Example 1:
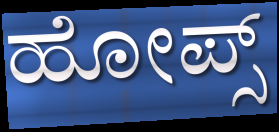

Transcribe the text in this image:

ಹೋಪ್ಸ್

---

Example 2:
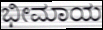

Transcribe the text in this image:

ಭೀಮಾಯ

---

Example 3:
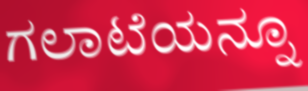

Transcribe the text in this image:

ಗಲಾಟೆಯನ್ನೂ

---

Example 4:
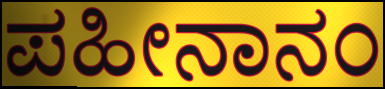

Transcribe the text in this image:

ಪಹೀನಾನಂ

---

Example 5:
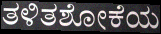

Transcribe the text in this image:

ತಳಿತಶೋಕೆಯ